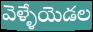
వెళ్ళేయెడల